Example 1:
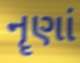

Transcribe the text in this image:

નૄણાં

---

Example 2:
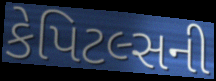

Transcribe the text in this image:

કેપિટલ્સની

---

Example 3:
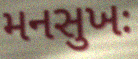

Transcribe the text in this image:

મનસુખઃ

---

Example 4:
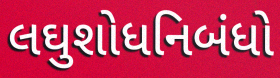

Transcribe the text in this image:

લઘુશોધનિબંધો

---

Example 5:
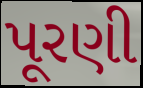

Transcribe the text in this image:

પૂરણી